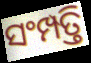
ସଂମ୍ପତ୍ତି